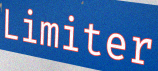
Limiter